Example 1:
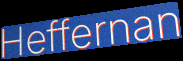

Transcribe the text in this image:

Heffernan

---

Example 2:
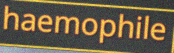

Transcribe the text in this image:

haemophile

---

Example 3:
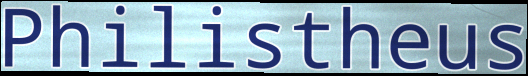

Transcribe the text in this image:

Philistheus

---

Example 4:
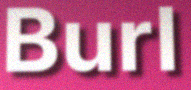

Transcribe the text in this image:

Burl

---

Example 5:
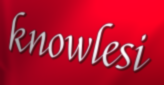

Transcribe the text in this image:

knowlesi